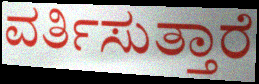
ವರ್ತಿಸುತ್ತಾರೆ